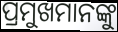
ପ୍ରମୁଖମାନଙ୍କୁ